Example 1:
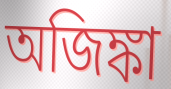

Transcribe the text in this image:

অজিঙ্কা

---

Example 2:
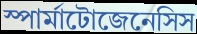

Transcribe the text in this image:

স্পার্মাটোজেনেসিস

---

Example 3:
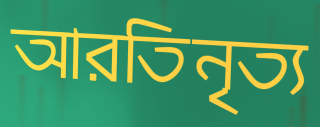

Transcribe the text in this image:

আরতিনৃত্য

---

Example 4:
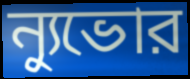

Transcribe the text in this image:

ন্যুভোর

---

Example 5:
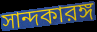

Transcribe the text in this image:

সান্দকারঙ্গ